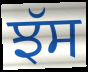
ਝੱਸ